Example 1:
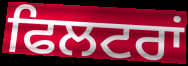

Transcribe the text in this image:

ਫਿਲਟਰਾਂ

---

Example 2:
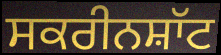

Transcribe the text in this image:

ਸਕਰੀਨਸ਼ਾੱਟ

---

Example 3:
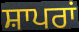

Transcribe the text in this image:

ਸ਼ਾਪਰਾਂ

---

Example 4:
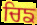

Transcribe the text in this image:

ਚਿਙ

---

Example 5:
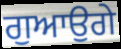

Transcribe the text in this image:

ਗੁਆਉਗੇ